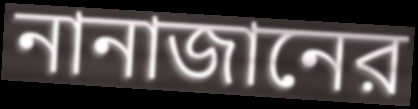
নানাজানের